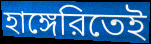
হাঙ্গেরিতেই